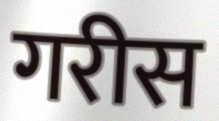
गरीस